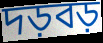
দড়বড়